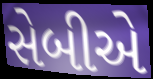
સેબીએ